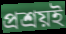
প্রশ্রয়ই